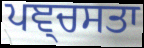
ਪਞ੍ਚਸਤਾ